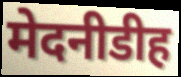
मेदनीडीह